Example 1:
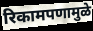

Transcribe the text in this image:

रिकामपणामुळे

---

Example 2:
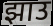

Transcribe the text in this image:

झाउ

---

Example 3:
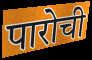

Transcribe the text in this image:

पारोची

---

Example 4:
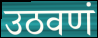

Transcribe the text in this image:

उठवणं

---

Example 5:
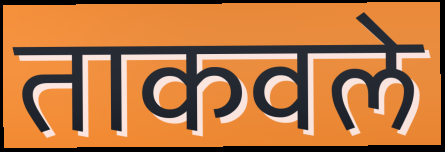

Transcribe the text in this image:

ताकवले